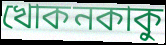
খোকনকাকু